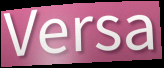
Versa